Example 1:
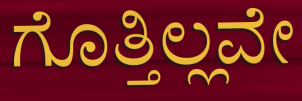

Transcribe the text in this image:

ಗೊತ್ತಿಲ್ಲವೇ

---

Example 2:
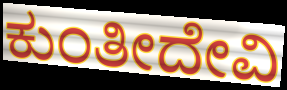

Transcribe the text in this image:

ಕುಂತೀದೇವಿ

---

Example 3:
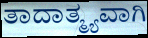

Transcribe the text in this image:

ತಾದಾತ್ಮ್ಯವಾಗಿ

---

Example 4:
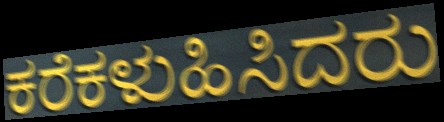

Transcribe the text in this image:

ಕರೆಕಳುಹಿಸಿದರು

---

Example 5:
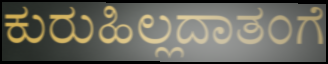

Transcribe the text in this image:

ಕುರುಹಿಲ್ಲದಾತಂಗೆ